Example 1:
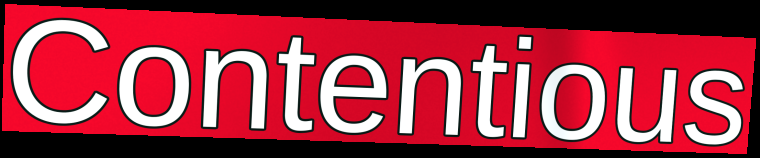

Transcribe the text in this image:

Contentious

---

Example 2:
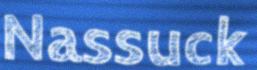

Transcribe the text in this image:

Nassuck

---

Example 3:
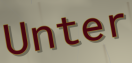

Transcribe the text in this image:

Unter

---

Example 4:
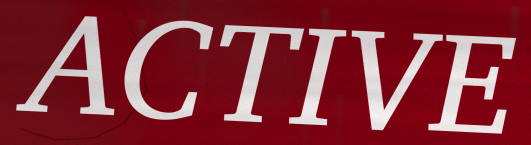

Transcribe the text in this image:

ACTIVE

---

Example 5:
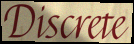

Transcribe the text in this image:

Discrete